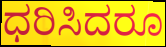
ಧರಿಸಿದರೂ